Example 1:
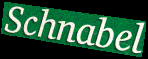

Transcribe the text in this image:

Schnabel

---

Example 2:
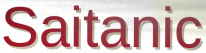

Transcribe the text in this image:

Saitanic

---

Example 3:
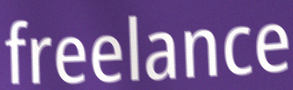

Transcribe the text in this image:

freelance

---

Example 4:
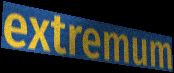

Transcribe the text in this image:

extremum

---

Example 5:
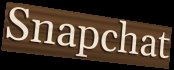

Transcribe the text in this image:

Snapchat